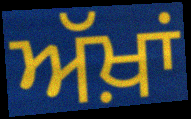
ਅੱਖ਼ਾਂ